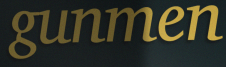
gunmen